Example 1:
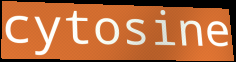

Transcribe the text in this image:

cytosine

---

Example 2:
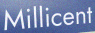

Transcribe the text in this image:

Millicent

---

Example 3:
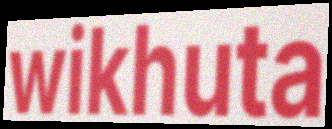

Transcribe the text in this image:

wikhuta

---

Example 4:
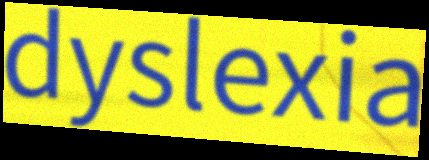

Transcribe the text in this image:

dyslexia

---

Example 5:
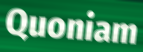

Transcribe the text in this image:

Quoniam